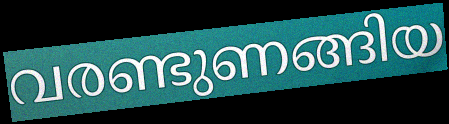
വരണ്ടുണങ്ങിയ